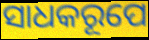
ସାଧକରୂପେ